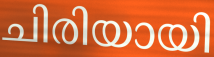
ചിരിയായി